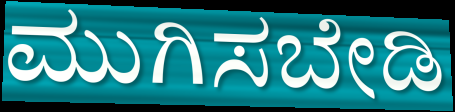
ಮುಗಿಸಬೇಡಿ